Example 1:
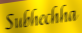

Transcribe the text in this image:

Subhechha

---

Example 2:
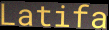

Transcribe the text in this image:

Latifa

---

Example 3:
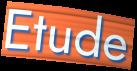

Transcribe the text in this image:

Etude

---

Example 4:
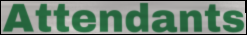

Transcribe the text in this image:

Attendants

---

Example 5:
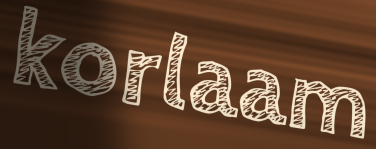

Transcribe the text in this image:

korlaam